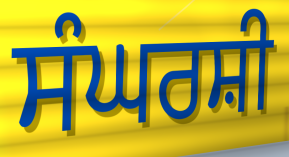
ਸੰਘਰਸ਼ੀ